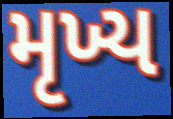
મૃખ્ય